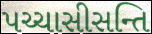
પચ્ચાસીસન્તિ